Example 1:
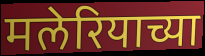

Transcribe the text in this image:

मलेरियाच्या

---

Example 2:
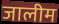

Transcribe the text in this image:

जालीम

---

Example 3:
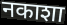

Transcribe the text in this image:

नकाशा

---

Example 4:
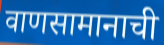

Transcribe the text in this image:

वाणसामानाची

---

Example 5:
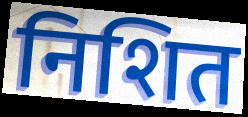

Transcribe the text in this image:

निशित